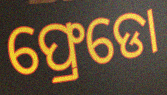
ଫ୍ରେଡୋ